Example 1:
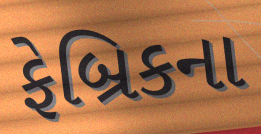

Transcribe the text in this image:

ફેબ્રિકના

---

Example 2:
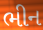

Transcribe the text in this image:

ભીન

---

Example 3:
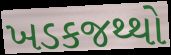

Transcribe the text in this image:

ખડકજથ્થો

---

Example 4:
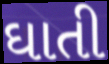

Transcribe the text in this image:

ઘાતી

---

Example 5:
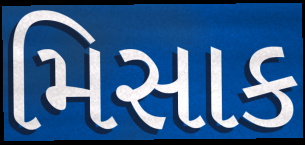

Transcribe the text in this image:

મિસાક